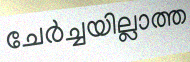
ചേർച്ചയില്ലാത്ത